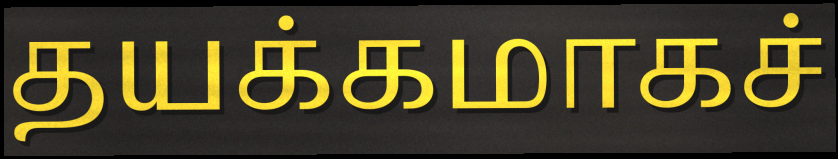
தயக்கமாகச்